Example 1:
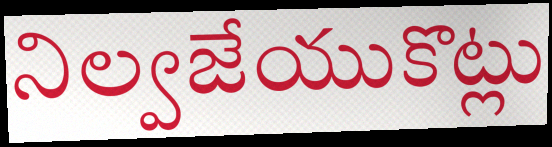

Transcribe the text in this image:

నిల్వజేయుకొట్లు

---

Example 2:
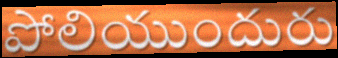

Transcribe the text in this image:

పోలియుందురు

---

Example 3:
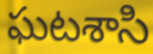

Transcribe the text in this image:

ఘటశాసి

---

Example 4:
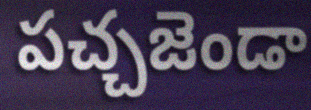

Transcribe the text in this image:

పచ్చజెండా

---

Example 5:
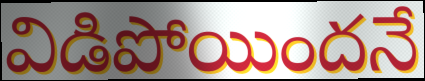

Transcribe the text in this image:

విడిపోయిందనే